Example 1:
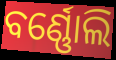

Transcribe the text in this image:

ବର୍ଣ୍ଣୋଲି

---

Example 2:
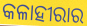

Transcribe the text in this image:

କଳାହୀରାର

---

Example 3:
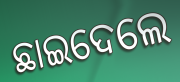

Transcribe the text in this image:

ଛାଇଦେଲେ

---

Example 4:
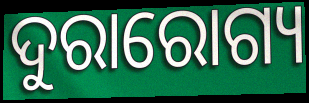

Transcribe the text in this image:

ଦୁରାରୋଗ୍ୟ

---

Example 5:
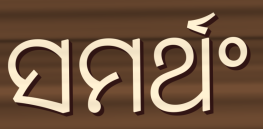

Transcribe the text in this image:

ସମର୍ଥଂ